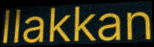
Ilakkan